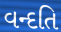
વન્દતિ